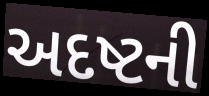
અદષ્ટની